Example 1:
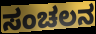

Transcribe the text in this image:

ಸಂಚಲನ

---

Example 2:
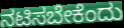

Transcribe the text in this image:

ನಟಿಸಬೇಕೆಂದು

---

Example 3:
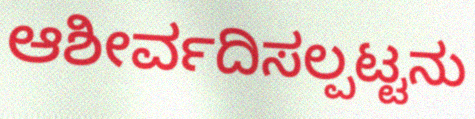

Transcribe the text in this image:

ಆಶೀರ್ವದಿಸಲ್ಪಟ್ಟನು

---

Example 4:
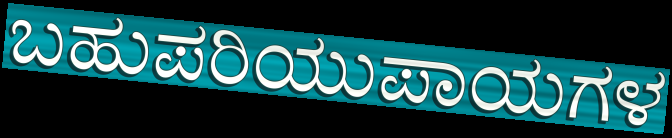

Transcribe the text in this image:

ಬಹುಪರಿಯುಪಾಯಗಳ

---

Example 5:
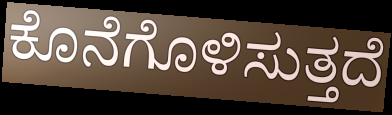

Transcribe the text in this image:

ಕೊನೆಗೊಳಿಸುತ್ತದೆ